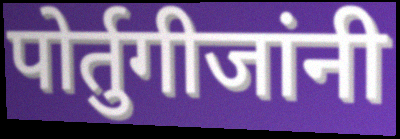
पोर्तुगीजांनी